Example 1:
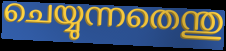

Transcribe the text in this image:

ചെയ്യുന്നതെന്തു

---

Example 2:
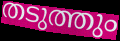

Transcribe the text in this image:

തടുത്തും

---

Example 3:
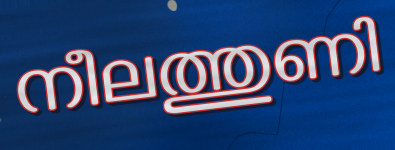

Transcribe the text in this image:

നീലത്തുണി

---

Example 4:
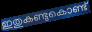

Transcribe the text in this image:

ഇതുകണ്ടുകൊണ്ട്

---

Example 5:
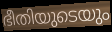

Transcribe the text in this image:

ഭീതിയുടെയും